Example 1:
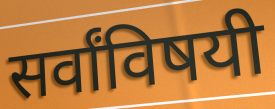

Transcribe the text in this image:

सर्वांविषयी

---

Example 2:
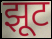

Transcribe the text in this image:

झूट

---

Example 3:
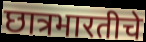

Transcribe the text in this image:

छात्रभारतीचे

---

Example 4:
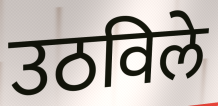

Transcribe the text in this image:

उठविले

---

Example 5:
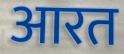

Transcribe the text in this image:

आरत